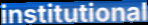
institutional